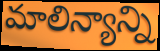
మాలిన్యాన్ని